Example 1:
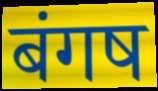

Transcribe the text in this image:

बंगष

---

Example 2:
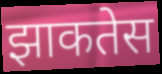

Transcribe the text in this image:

झाकतेस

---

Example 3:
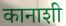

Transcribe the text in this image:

कानाशी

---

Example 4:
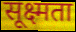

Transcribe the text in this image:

सूक्ष्मता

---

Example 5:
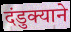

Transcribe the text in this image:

दंडुक्याने